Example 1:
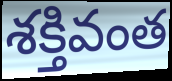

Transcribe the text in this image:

శక్తివంత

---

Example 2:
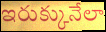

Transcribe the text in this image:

ఇరుక్కునేలా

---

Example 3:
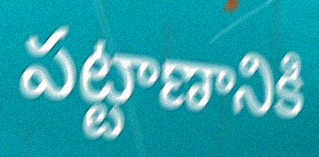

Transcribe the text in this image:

పట్టాణానికి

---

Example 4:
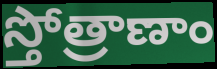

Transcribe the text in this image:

స్తోత్రాణాం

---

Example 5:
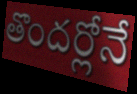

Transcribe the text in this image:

తొందర్లోనే